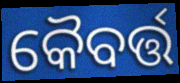
କୈବର୍ତ୍ତ